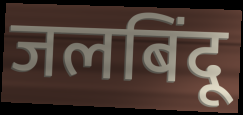
जलबिंदू